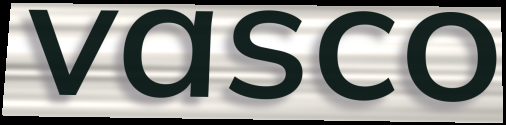
vasco